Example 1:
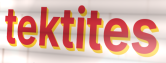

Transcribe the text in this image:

tektites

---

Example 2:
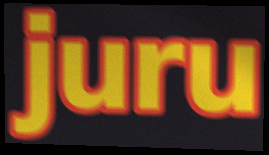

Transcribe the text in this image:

juru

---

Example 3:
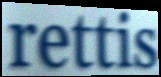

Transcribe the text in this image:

rettis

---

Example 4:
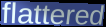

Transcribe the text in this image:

flattered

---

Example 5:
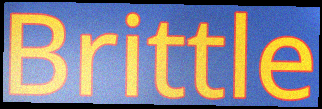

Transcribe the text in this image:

Brittle